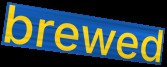
brewed